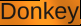
Donkey